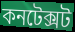
কনটেক্সট